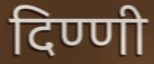
दिण्णी